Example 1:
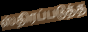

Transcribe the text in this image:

ஸ்திரப்படுத்த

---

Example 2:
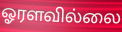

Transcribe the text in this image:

ஓரளவில்லை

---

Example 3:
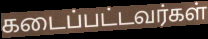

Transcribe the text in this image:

கடைப்பட்டவர்கள்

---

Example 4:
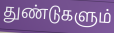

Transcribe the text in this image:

துண்டுகளும்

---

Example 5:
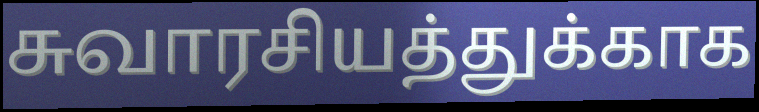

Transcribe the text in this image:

சுவாரசியத்துக்காக